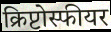
क्रिप्टोस्फीयर